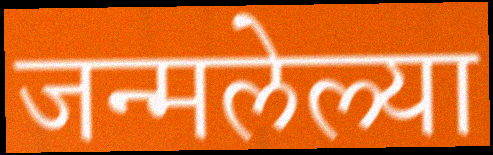
जन्मलेल्या